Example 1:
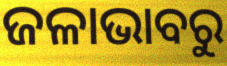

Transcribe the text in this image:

ଜଳାଭାବରୁ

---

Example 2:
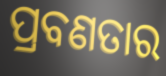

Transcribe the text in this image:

ପ୍ରବଣତାର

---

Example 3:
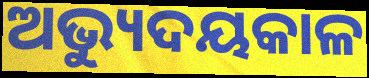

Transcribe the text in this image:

ଅଭ୍ୟୁଦୟକାଳ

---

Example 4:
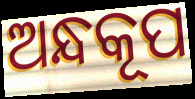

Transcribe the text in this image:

ଅନ୍ଧକୂପ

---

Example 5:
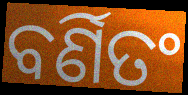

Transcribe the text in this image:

ବର୍ଣିତଂ